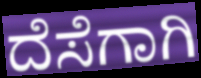
ದೆಸೆಗಾಗಿ